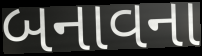
બનાવના